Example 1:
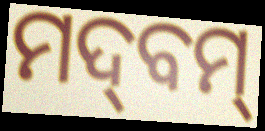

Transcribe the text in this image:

ମଦ୍‌ବମ୍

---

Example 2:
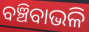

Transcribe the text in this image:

ବଞ୍ଚିବାଭଳି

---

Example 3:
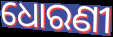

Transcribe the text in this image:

ଧୋରଣୀ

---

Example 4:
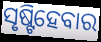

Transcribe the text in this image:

ସୃଷ୍ଟିହେବାର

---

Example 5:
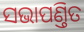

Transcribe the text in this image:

ସଭାପଣ୍ତିତ